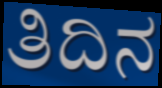
ತಿದಿನ